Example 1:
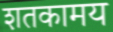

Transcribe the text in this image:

शतकामय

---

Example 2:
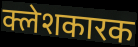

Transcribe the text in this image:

क्लेशकारक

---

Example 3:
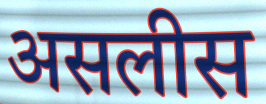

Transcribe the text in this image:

असलीस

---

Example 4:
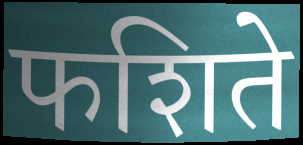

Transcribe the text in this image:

फशिते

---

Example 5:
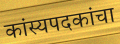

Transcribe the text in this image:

कांस्यपदकांचा